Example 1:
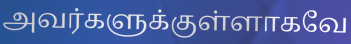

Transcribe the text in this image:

அவர்களுக்குள்ளாகவே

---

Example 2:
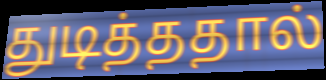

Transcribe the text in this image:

துடித்ததால்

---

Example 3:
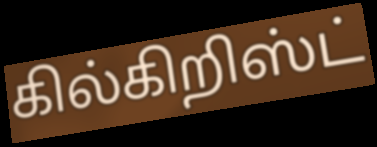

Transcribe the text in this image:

கில்கிறிஸ்ட்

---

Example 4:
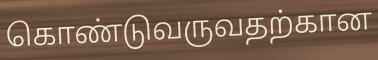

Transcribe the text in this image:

கொண்டுவருவதற்கான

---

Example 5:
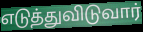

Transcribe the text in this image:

எடுத்துவிடுவார்